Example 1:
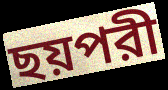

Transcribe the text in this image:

ছয়পরী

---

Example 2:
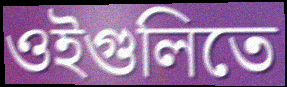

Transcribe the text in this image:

ওইগুলিতে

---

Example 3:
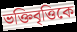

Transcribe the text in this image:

ভক্তিবৃত্তিকে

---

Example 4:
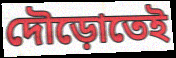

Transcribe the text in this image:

দৌড়োতেই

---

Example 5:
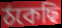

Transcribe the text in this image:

ঠকেছি